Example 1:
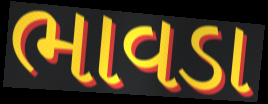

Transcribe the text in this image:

ભાવડા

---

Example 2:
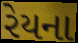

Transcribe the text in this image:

રેયના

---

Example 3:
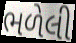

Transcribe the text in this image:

ભળેલી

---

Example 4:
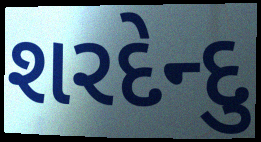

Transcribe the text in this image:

શરદેન્દુ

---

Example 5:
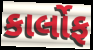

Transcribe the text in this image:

કાર્લોફ